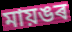
মায়ঙৰ